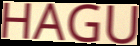
HAGU